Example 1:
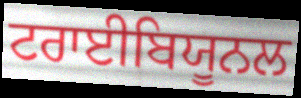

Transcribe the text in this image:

ਟਰਾਈਬਿਯੂਨਲ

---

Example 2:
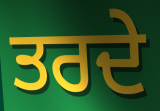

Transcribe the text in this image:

ਤਰਦੇ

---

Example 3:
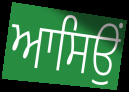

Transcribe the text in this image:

ਆਸਿਉਂ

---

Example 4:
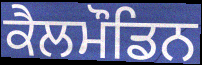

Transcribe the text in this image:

ਕੈਲਮੌਡਿਨ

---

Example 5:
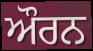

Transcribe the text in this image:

ਔਰਨ